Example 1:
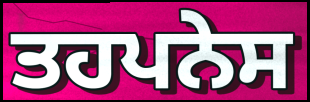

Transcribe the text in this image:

ਤਹਪਨੇਸ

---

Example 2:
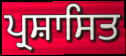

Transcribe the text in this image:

ਪ੍ਰਸ਼ਾਸਿਤ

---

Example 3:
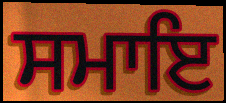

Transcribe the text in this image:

ਸਮਾਇ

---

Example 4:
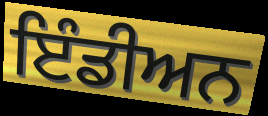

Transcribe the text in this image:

ਇੰਡੀਅਨ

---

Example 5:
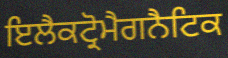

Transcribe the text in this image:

ਇਲੈਕਟ੍ਰੋਮੈਗਨੈਟਿਕ